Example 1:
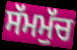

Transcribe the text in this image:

ਸੱਮਮੁੱਚ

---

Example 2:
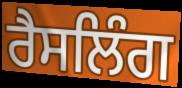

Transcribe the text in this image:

ਰੈਸਲਿੰਗ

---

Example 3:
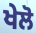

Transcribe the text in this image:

ਖੇਲੋ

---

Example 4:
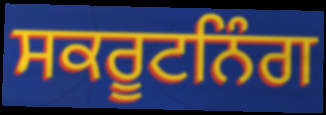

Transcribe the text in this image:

ਸਕਰੂਟਨਿੰਗ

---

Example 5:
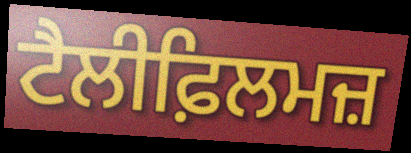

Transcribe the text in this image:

ਟੈਲੀਫ਼ਿਲਮਜ਼